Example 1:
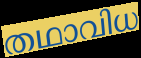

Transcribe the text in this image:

തഥാവിധ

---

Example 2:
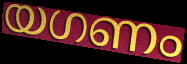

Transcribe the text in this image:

യഗണം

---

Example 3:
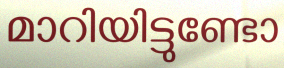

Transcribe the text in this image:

മാറിയിട്ടുണ്ടോ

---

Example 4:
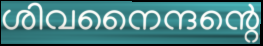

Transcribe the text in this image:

ശിവനൈന്ദന്റെ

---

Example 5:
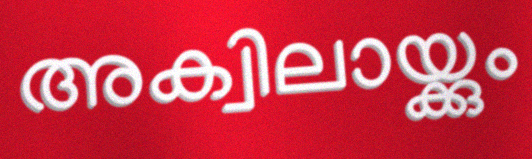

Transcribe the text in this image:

അക്വിലായ്ക്കും